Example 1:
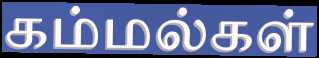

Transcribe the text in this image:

கம்மல்கள்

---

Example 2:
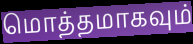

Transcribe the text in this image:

மொத்தமாகவும்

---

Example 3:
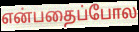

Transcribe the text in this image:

என்பதைப்போல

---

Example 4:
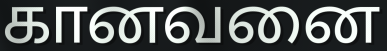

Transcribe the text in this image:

கானவனை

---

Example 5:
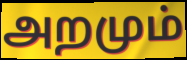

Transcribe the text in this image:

அறமும்